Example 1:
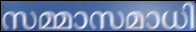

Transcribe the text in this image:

സമ്മാസമാധി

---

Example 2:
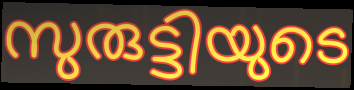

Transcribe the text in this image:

സുരുട്ടിയുടെ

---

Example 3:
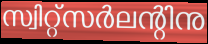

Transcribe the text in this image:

സ്വിറ്റ്സർലന്റിനു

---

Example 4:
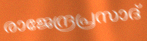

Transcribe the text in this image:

രാജേന്ദ്രപ്രസാദ്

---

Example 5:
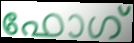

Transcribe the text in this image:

ഫോഗ്